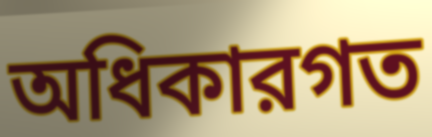
অধিকারগত